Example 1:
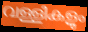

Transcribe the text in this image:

വള്ളികളും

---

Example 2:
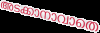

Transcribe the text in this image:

അടക്കാനാവാതെ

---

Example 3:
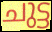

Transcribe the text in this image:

ചുട്ട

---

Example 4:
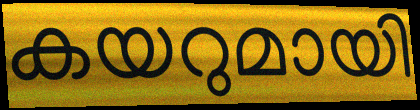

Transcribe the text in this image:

കയറുമായി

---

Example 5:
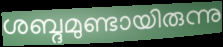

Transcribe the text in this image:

ശബ്ദമുണ്ടായിരുന്നു